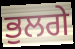
ਭੁਲਗੇ